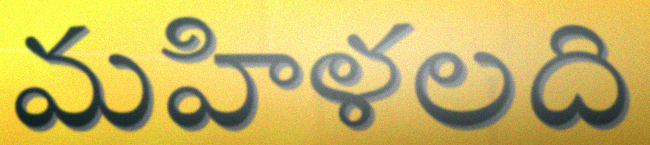
మహిళలది